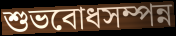
শুভবোধসম্পন্ন